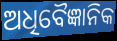
ଅଧିବୈଜ୍ଞାନିକ